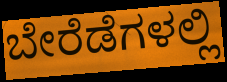
ಬೇರೆಡೆಗಳಲ್ಲಿ